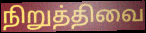
நிறுத்திவை